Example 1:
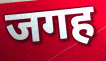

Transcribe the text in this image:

जगह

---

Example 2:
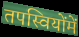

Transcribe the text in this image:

तपस्वियोंमें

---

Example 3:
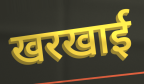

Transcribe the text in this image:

खरखाई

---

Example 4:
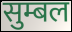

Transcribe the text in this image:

सुम्बल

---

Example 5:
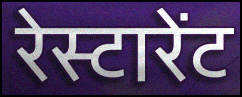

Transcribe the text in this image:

रेस्टारेंट